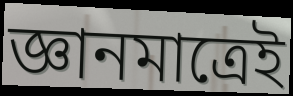
জ্ঞানমাত্রেই